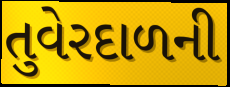
તુવેરદાળની